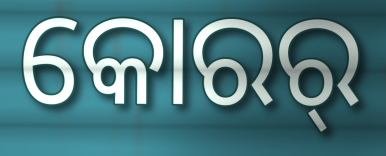
କୋରର୍